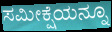
ಸಮೀಕ್ಷೆಯನ್ನೂ